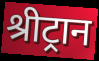
श्रीट्रान